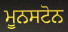
ਮੂਨਸਟੋਨ